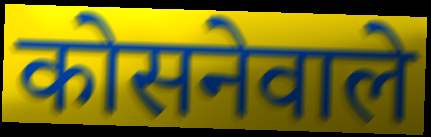
कोसनेवाले